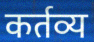
कर्तव्य